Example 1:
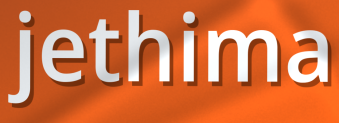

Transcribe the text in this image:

jethima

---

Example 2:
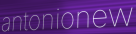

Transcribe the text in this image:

antonionew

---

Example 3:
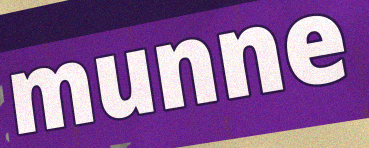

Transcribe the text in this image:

munne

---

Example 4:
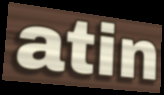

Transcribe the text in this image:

atin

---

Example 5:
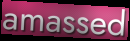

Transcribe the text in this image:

amassed